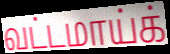
வட்டமாய்க்